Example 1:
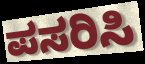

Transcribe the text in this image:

ಪಸರಿಸಿ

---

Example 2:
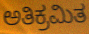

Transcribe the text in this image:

ಅತಿಕ್ರಮಿತ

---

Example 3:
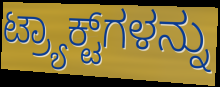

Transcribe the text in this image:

ಟ್ರ್ಯಾಕ್ಟ್‌ಗಳನ್ನು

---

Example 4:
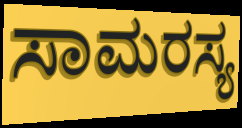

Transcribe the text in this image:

ಸಾಮರಸ್ಯ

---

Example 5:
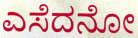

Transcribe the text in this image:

ಎಸೆದನೋ